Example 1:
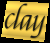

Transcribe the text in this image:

clay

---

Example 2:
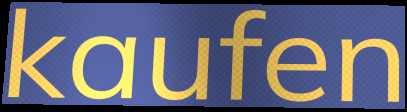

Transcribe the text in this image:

kaufen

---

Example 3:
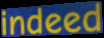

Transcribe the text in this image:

indeed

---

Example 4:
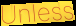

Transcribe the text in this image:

Unless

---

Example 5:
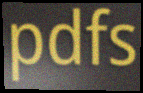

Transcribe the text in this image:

pdfs